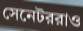
সেনেটররাও